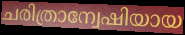
ചരിത്രാന്വേഷിയായ